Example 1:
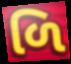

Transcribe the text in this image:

ળિ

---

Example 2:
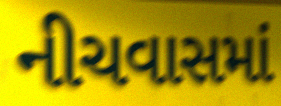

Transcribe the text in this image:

નીચવાસમાં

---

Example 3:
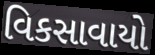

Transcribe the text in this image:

વિકસાવાયો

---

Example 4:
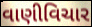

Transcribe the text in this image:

વાણીવિચાર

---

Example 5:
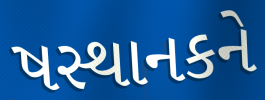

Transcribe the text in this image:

ષસ્થાનકને